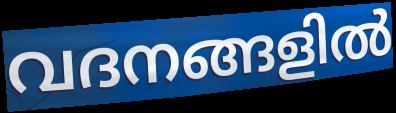
വദനങ്ങളിൽ